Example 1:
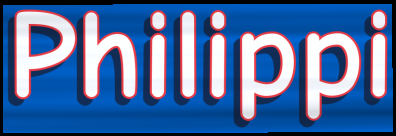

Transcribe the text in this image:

Philippi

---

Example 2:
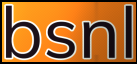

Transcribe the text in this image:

bsnl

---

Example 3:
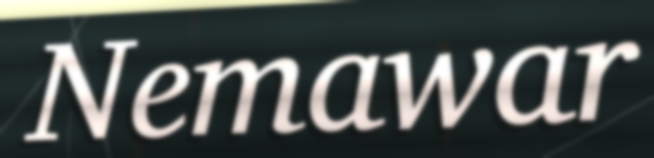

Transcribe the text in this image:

Nemawar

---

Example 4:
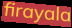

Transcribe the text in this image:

firayala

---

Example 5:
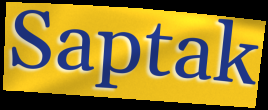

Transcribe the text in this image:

Saptak